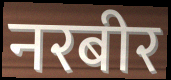
नरबीर